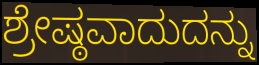
ಶ್ರೇಷ್ಠವಾದುದನ್ನು